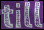
till